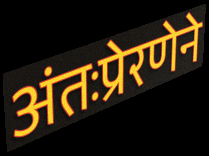
अंतःप्रेरणेने